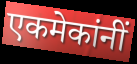
एकमेकांनीं